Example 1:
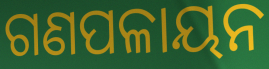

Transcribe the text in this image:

ଗଣପଳାୟନ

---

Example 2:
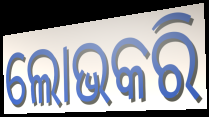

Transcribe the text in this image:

ଲୋଭକରି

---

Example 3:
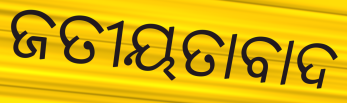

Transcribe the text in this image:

ଜତୀୟତାବାଦ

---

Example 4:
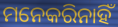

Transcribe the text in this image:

ମନେକରିନାହିଁ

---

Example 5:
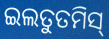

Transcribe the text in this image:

ଇଲତୁତମିସ୍